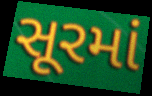
સૂરમાં